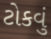
ટોકવું